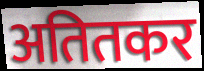
अतितकर